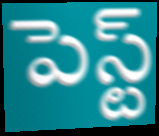
పెస్ట్